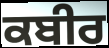
ਕਬੀਰ